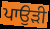
ਪਾਉੜੀ